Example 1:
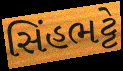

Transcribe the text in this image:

સિંહભટ્ટે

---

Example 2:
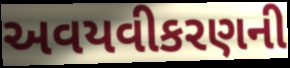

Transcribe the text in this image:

અવયવીકરણની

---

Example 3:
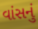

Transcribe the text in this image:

વાંસનું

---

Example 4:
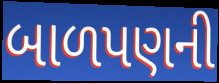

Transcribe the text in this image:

બાળપણની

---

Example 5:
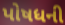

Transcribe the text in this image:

પોષધની